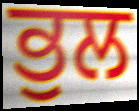
ਭੁਲ